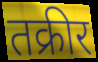
तक्रीर